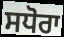
ਸਧੋਰਾ